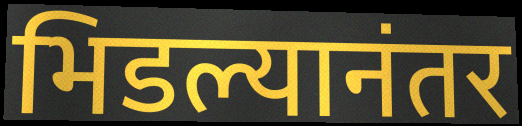
भिडल्यानंतर